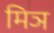
मिञ